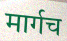
मार्गच